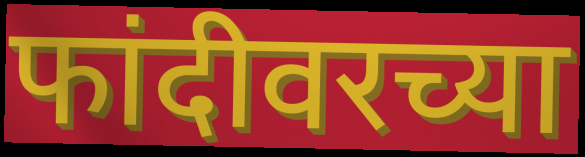
फांदीवरच्या